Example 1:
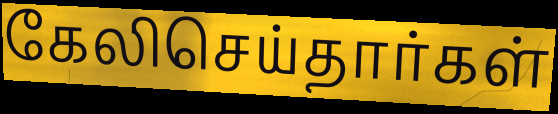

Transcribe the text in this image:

கேலிசெய்தார்கள்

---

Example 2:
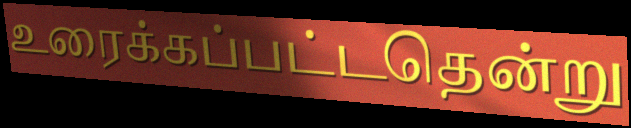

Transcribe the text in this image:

உரைக்கப்பட்டதென்று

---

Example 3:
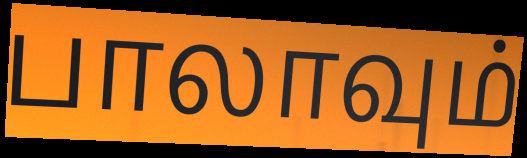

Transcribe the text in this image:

பாலாவும்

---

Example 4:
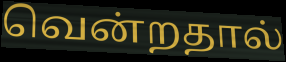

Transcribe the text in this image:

வென்றதால்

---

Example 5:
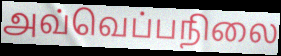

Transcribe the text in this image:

அவ்வெப்பநிலை